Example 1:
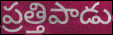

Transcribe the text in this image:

ప్రత్తిపాడు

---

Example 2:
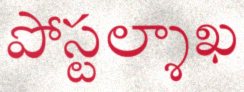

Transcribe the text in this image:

పోస్టల్శాఖ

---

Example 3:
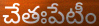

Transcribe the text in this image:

చేతఃపేటీం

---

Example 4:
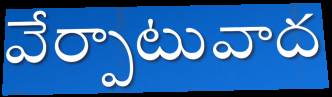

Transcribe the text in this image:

వేర్పాటువాద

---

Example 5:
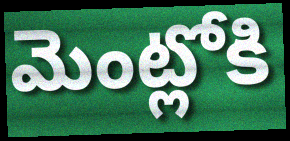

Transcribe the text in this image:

మెంట్లోకి